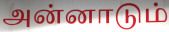
அன்னாடும்